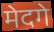
मेदगे